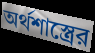
অর্থশাস্ত্রের